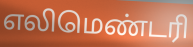
எலிமெண்டரி